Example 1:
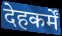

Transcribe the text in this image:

देहकर्में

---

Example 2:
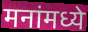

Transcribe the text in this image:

मनांमध्ये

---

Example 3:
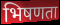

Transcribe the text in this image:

भिषणता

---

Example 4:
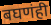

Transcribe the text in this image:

बघणंही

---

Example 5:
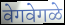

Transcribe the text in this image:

वेगवेगळे